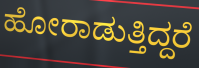
ಹೋರಾಡುತ್ತಿದ್ದರೆ